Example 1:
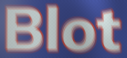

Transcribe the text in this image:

Blot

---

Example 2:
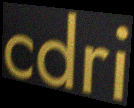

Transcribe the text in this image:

cdri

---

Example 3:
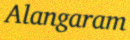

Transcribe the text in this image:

Alangaram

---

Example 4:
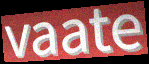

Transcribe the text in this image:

vaate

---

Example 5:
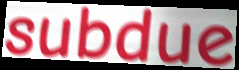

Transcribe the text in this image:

subdue